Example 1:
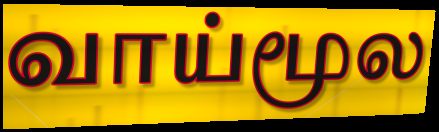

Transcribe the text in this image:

வாய்மூல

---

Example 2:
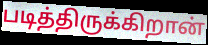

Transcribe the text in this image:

படித்திருக்கிறான்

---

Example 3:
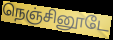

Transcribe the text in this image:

நெஞ்சினூடே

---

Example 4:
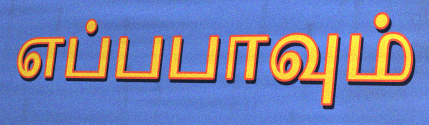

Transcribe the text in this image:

எப்பபாவும்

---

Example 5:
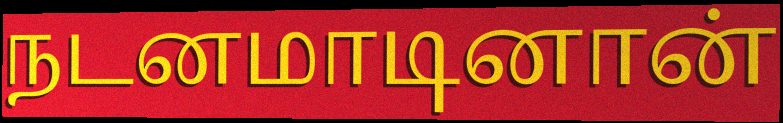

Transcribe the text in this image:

நடனமாடினான்